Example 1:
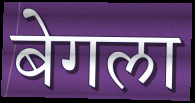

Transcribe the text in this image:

बेगला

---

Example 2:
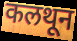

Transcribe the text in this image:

कलथून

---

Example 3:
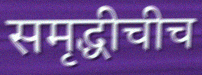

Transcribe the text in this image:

समृद्धीचीच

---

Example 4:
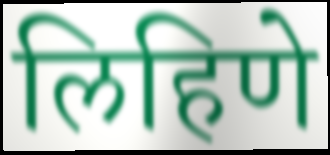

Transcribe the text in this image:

लिहिणे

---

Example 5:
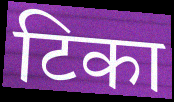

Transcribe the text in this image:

टिका